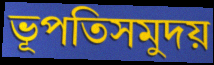
ভূপতিসমুদয়